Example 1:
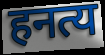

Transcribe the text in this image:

हनत्य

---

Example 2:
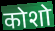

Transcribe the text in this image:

कोशो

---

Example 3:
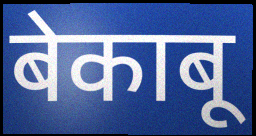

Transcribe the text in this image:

बेकाबू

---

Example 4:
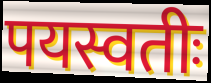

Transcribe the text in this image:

पयस्वतीः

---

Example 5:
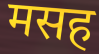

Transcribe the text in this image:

मसह